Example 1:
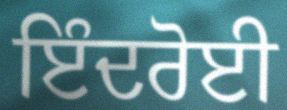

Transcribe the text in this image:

ਇੰਦਰੋਈ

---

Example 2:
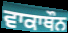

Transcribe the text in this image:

ਵਾਕਾਥੌਨ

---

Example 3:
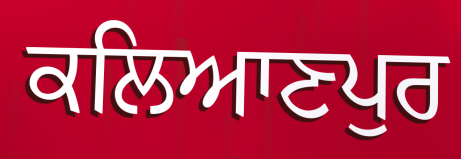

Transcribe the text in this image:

ਕਲਿਆਣਪੁਰ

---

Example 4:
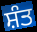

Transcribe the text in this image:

ਸ਼ੰਤ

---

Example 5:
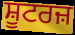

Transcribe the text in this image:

ਸ਼ੂਟਰਜ਼